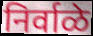
निर्वाळे